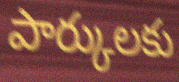
పార్కులకు